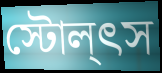
স্টোল্ৎস